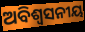
ଅବିଶ୍ବସନୀୟ